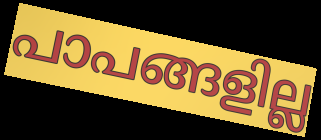
പാപങ്ങളില്ല